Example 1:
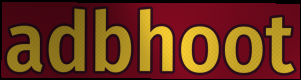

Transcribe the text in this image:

adbhoot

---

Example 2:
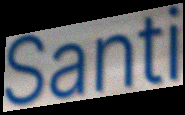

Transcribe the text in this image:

Santi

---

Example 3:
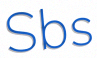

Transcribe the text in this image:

Sbs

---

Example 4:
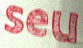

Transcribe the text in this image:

seu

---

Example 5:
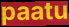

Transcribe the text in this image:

paatu